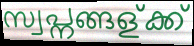
സ്വപ്നങ്ങള്ക്ക്